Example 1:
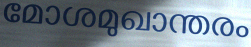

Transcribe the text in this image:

മോശമുഖാന്തരം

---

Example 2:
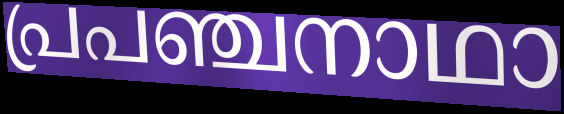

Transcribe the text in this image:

പ്രപഞ്ചനാഥാ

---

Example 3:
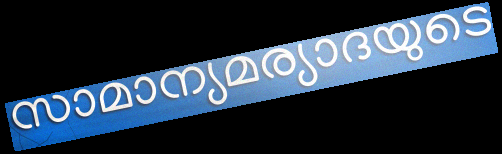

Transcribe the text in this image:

സാമാന്യമര്യാദയുടെ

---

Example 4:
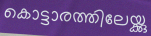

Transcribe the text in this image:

കൊട്ടാരത്തിലേയ്ക്കു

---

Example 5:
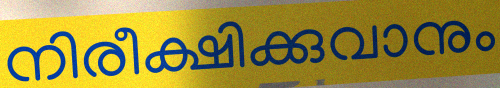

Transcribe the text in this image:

നിരീക്ഷിക്കുവാനും